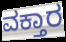
ವಕ್ತಾರ